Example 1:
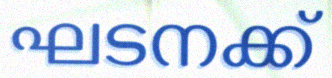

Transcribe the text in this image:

ഘടനക്ക്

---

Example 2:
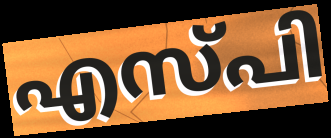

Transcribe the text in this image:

എസ്പി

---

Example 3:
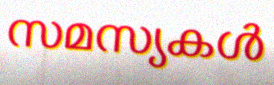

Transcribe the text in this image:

സമസ്യകൾ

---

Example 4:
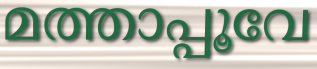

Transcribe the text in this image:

മത്താപ്പൂവേ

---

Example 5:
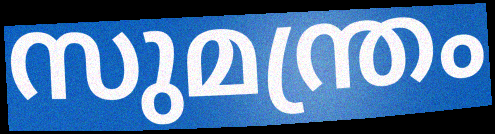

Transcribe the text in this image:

സുമന്ത്രം